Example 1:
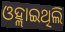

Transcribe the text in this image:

ଓହ୍ଲାଇଥିଲି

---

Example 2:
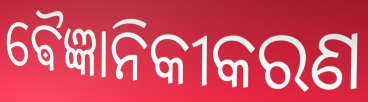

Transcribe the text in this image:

ଵୈଜ୍ଞାନିକୀକରଣ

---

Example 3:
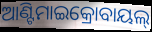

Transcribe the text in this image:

ଆଣ୍ଟିମାଇକ୍ରୋବାୟଲ୍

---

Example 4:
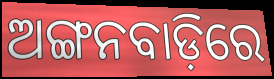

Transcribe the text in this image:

ଅଙ୍ଗନବାଡ଼ିରେ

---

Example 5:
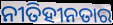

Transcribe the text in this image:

ନୀତିହୀନତାର